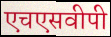
एचएसवीपी